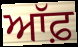
ਆੱਫ਼